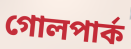
গোলপার্ক